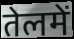
तेलमें